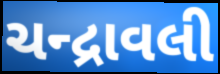
ચન્દ્રાવલી